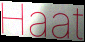
Haat